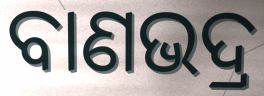
ବାଣଭଦ୍ର